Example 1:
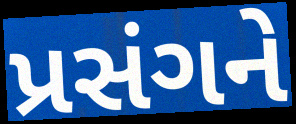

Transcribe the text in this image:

પ્રસંગને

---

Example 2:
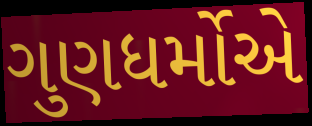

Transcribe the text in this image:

ગુણધર્મોએ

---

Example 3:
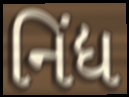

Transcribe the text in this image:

નિંદ્ય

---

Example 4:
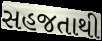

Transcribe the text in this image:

સહજતાથી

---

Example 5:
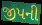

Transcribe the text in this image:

જીપની